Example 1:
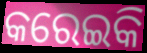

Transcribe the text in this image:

କରେଇକି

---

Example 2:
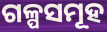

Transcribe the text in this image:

ଗଳ୍ପସମୂହ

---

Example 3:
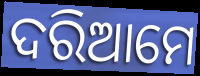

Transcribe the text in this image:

ଦରିଆମେ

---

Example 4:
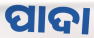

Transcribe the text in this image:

ପାଦା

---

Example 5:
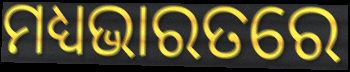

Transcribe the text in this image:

ମଧ୍ୟଭାରତରେ